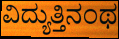
ವಿದ್ಯುತ್ತಿನಂಥ